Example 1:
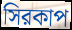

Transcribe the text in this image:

সিরকাপ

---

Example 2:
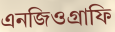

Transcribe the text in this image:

এনজিওগ্রাফি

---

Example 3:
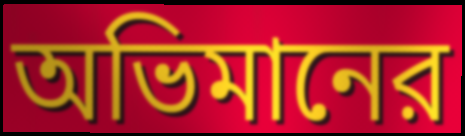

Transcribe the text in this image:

অভিমানের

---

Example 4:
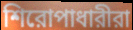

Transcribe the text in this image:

শিরোপাধারীরা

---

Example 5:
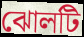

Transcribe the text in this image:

ঝোলটি